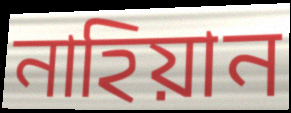
নাহিয়ান